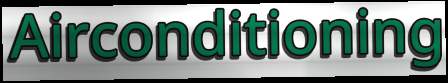
Airconditioning